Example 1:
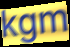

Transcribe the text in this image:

kgm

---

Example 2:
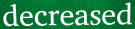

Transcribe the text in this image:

decreased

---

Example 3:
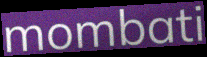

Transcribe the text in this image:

mombati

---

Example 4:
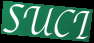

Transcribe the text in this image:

SUCI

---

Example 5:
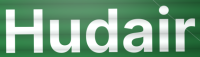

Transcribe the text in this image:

Hudair